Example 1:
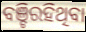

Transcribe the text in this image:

ବଞ୍ଚିରହିଥିବା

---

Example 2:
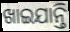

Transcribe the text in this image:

ଖାଇଯାନ୍ତି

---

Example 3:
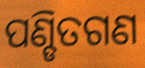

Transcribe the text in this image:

ପଣ୍ଡିତଗଣ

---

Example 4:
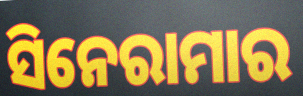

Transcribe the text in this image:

ସିନେରାମାର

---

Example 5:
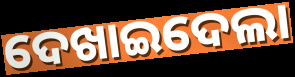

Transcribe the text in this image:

ଦେଖାଇଦେଲା